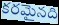
కరమైనది